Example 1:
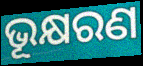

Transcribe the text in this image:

ଭୂକ୍ଷରଣ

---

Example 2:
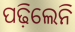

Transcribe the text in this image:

ପଢ଼ିଲେନି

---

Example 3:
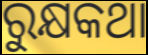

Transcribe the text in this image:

ରୁକ୍ଷକଥା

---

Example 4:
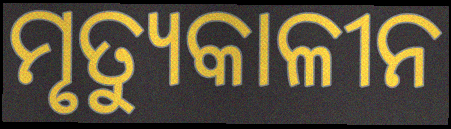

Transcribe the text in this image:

ମୃତ୍ୟୁକାଳୀନ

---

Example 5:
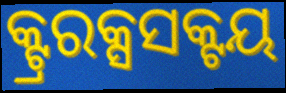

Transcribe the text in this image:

କ୍ଟ୍ରରକ୍ସସକ୍ଟୟ